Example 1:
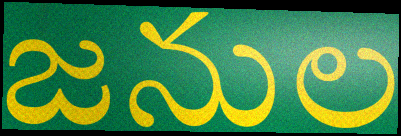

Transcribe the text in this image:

జనుల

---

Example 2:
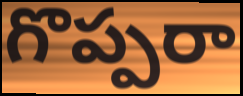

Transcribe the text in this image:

గొప్పరా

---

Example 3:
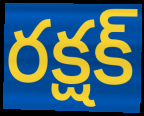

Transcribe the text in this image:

రక్షక్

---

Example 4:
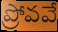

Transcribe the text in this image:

ప్రోవవే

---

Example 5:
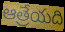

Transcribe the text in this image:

ఆత్రేయది